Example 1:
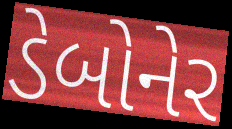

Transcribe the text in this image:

ડેબોનેર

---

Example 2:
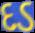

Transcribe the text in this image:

દડ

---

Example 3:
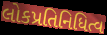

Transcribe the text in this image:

લોકપ્રતિનિધિત્વ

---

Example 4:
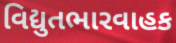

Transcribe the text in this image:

વિદ્યુતભારવાહક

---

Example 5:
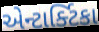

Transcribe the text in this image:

એન્ટાર્ક્ટિકા